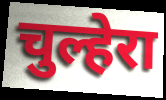
चुल्हेरा